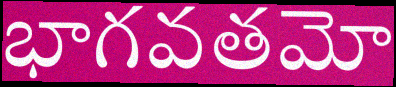
భాగవతమో